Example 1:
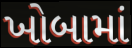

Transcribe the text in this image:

ખોબામાં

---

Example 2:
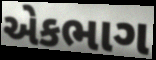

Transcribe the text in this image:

એકભાગ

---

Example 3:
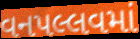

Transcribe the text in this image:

વનપલ્લવમાં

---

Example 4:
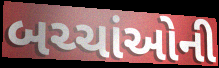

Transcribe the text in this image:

બચ્ચાંઓની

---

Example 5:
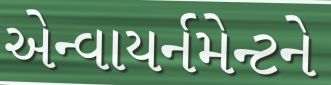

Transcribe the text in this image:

એન્વાયર્નમેન્ટને